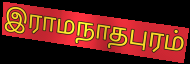
இராமநாதபுரம்